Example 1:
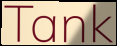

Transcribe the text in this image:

Tank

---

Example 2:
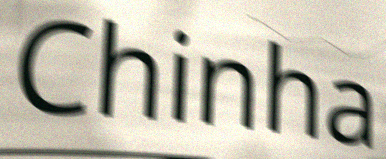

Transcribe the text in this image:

Chinha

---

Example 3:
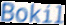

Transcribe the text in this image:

Bokil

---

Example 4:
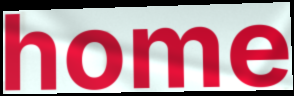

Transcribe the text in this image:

home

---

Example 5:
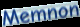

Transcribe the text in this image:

Memnon